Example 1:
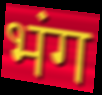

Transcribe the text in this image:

भंग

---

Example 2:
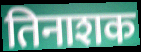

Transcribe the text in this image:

तिनाशक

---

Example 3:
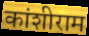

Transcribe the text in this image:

कांशीराम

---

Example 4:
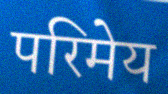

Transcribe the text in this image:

परिमेय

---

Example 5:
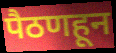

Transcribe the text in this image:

पैठणहून